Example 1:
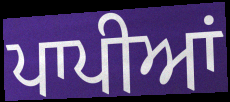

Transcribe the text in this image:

ਪਾਪੀਆਂ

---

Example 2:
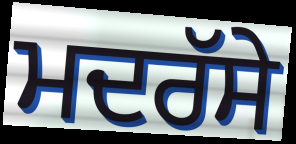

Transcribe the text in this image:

ਮਦਰੱਸੇ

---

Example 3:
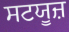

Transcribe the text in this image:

ਸਟਯੂਜ਼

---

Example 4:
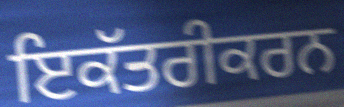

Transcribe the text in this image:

ਇਕੱਤਰੀਕਰਨ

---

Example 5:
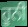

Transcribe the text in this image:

ਹੂਨੀ